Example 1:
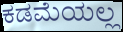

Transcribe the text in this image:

ಕಡಮೆಯಲ್ಲ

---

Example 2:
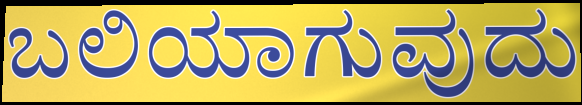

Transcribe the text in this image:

ಬಲಿಯಾಗುವುದು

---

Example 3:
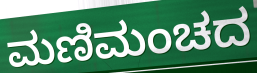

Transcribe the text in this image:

ಮಣಿಮಂಚದ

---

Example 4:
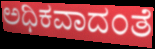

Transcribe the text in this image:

ಅಧಿಕವಾದಂತೆ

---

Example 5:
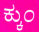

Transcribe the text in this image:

ಕ್ಕುಂ